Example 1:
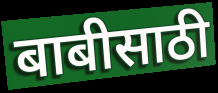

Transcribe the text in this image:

बाबीसाठी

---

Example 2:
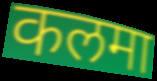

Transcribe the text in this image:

कलमा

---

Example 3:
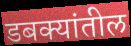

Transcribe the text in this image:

डबक्यांतील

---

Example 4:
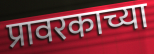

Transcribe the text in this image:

प्रावरकाच्या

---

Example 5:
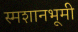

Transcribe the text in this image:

स्मशानभूमी